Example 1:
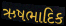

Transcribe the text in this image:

ઋષભાદિક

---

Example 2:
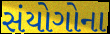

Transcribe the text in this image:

સંયોગોના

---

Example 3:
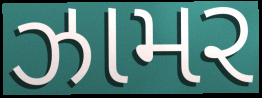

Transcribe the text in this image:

ઝામર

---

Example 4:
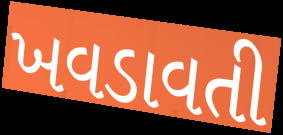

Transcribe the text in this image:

ખવડાવતી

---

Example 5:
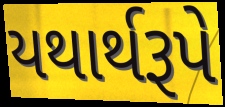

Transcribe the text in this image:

યથાર્થરૂપે